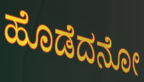
ಹೊಡೆದನೋ